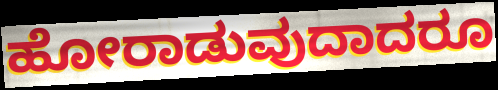
ಹೋರಾಡುವುದಾದರೂ